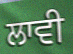
ਲਾਵੀ